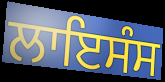
ਲਾਇਸੰਸ